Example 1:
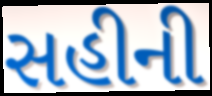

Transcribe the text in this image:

સહીની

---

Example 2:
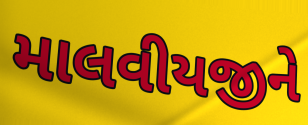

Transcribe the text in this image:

માલવીયજીને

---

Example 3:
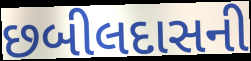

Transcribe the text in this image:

છબીલદાસની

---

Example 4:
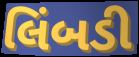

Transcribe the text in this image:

લિંબડી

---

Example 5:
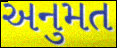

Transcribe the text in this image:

અનુમત